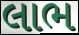
લાભ